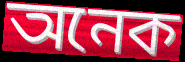
অনেক